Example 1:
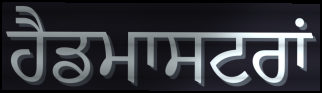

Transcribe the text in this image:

ਹੈਡਮਾਸਟਰਾਂ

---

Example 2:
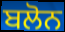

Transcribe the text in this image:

ਬਲੋਨ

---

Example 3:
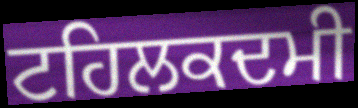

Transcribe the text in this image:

ਟਹਿਲਕਦਮੀ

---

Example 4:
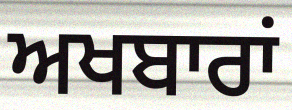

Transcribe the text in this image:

ਅਖਬਾਰਾਂ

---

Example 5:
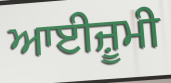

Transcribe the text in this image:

ਆਈਜ਼ੂਮੀ